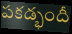
పకడ్భందీ